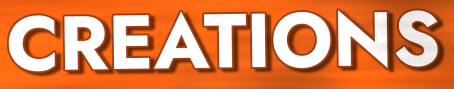
CREATIONS